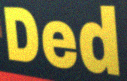
Ded